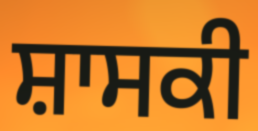
ਸ਼ਾਸਕੀ